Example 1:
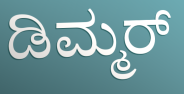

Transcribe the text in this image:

ಡಿಮ್ಮರ್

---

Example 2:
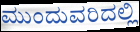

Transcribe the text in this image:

ಮುಂದುವರಿದಲ್ಲಿ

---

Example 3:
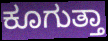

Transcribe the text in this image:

ಕೂಗುತ್ತಾ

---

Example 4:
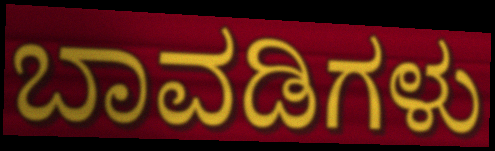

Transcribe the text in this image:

ಬಾವಡಿಗಳು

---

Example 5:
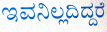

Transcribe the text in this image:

ಇವನಿಲ್ಲದಿದ್ದರೆ